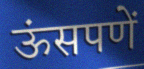
ऊंसपणें